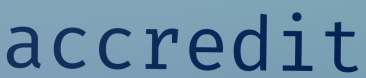
accredit